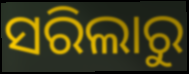
ସରିଲାରୁ